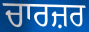
ਚਾਰਜ਼ਰ